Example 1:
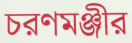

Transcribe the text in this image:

চরণমঞ্জীর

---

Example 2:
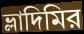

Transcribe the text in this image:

ভ্লাদিমির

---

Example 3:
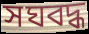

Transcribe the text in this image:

সঘবদ্ধ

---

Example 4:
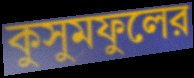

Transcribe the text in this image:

কুসুমফুলের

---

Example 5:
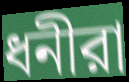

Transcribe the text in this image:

ধনীরা